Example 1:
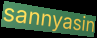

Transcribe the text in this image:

sannyasin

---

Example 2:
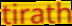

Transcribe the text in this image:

tirath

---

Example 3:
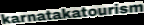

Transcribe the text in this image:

karnatakatourism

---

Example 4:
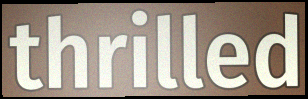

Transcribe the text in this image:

thrilled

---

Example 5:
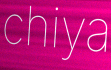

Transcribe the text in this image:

chiya